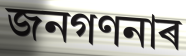
জনগণনাৰ